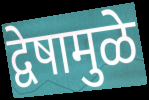
द्वेषामुळे